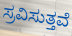
ಸ್ರವಿಸುತ್ತವೆ